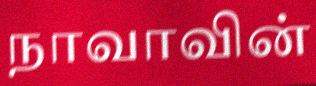
நாவாவின்